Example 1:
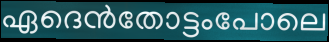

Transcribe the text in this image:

ഏദെൻതോട്ടംപോലെ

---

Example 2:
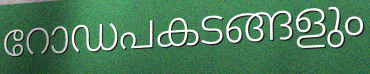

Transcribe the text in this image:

റോഡപകടങ്ങളും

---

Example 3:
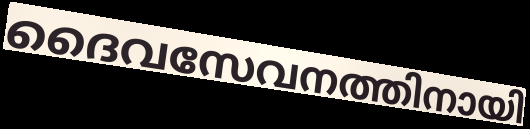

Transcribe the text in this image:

ദൈവസേവനത്തിനായി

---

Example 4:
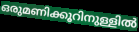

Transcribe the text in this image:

ഒരുമണിക്കൂറിനുള്ളിൽ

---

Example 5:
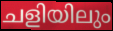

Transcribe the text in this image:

ചളിയിലും